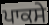
ਪਾਕਸੇ